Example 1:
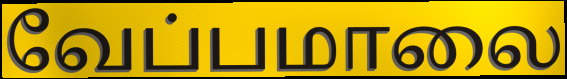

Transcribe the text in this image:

வேப்பமாலை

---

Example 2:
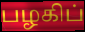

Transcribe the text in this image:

பழகிப்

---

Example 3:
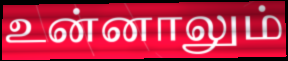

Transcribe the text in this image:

உன்னாலும்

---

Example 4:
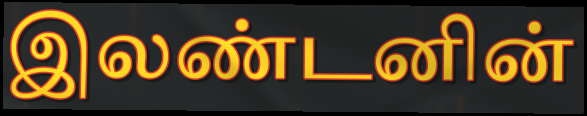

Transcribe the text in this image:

இலண்டனின்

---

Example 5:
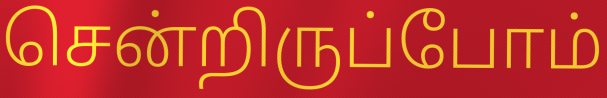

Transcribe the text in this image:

சென்றிருப்போம்